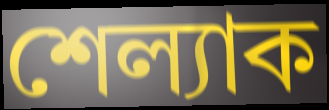
শেল্যাক